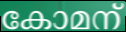
കോമന്